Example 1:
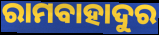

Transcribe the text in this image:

ରାମବାହାଦୁର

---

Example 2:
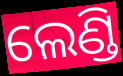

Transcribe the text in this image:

ଲେଣ୍ଡି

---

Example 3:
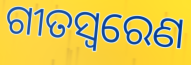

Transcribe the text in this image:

ଗୀତସ୍ବରେଣ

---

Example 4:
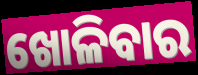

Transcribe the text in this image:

ଖୋଳିବାର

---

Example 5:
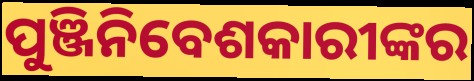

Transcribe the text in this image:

ପୁଞ୍ଜିନିବେଶକାରୀଙ୍କର